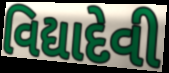
વિદ્યાદેવી